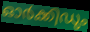
ഓർക്കിഡും